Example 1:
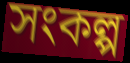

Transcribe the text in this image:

সংকল্প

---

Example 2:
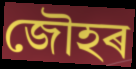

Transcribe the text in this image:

জৌহৰ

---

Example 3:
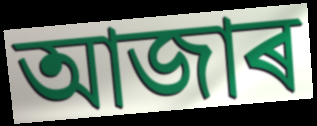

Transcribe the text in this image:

আজাৰ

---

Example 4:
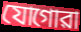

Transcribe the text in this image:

যোগোৱা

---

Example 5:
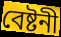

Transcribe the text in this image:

বেষ্টনী